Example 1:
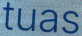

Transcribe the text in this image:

tuas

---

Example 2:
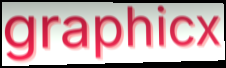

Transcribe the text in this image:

graphicx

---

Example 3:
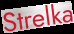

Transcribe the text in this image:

Strelka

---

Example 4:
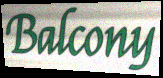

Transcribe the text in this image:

Balcony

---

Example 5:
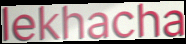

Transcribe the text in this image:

lekhacha